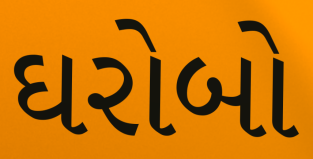
ઘરોબો